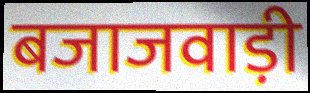
बजाजवाड़ी